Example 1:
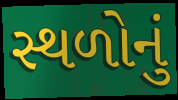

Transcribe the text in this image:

સ્થળોનું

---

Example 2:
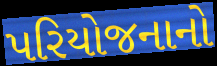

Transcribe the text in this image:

પરિયોજનાનો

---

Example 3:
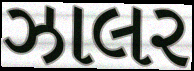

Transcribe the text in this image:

ઝાલર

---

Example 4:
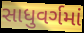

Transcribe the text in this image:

સાધુવર્ગમાં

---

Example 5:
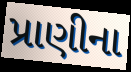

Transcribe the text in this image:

પ્રાણીના